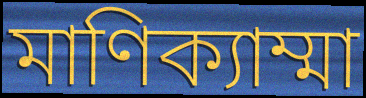
মাণিক্যাম্মা